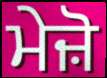
ਮੇਜ਼ੋ